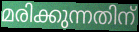
മരിക്കുന്നതിന്